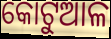
କୋଟୁଆଳ